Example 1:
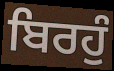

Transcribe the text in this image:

ਬਿਰਹੁੰ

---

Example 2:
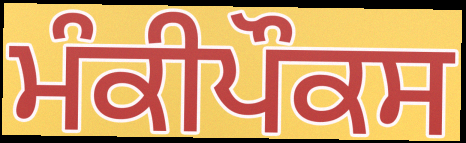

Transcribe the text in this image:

ਮੰਕੀਪੌਕਸ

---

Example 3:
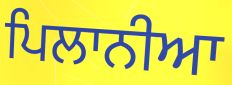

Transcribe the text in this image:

ਪਿਲਾਨੀਆ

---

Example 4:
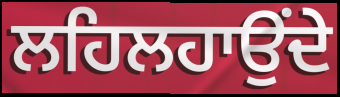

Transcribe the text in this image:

ਲਹਿਲਹਾਉਂਦੇ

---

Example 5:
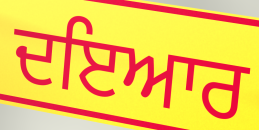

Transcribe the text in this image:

ਦਇਆਰ